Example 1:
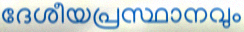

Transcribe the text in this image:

ദേശീയപ്രസ്ഥാനവും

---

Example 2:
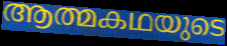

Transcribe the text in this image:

ആത്മകഥയുടെ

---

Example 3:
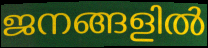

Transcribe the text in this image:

ജനങ്ങളിൽ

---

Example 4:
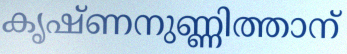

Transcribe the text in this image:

കൃഷ്ണനുണ്ണിത്താന്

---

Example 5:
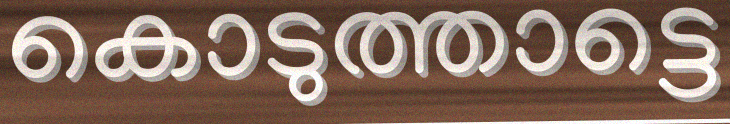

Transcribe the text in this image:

കൊടുത്താട്ടെ